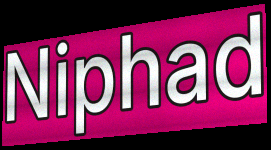
Niphad